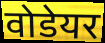
वोडेयर